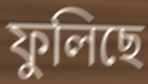
ফুলিছে